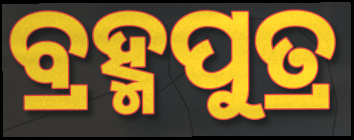
ବ୍ରହ୍ମପୁତ୍ର